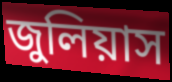
জুলিয়াস